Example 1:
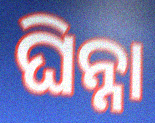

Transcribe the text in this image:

ଘିନ୍ନା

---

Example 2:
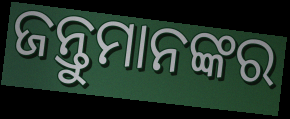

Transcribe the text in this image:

ଜନ୍ତୁମାନଙ୍କର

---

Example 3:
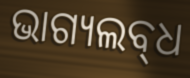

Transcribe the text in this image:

ଭାଗ୍ୟଲବ୍‌ଧ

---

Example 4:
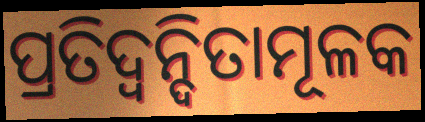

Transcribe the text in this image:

ପ୍ରତିଦ୍ୱନ୍ଦିତାମୂଳକ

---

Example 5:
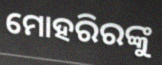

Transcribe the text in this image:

ମୋହରିରଙ୍କୁ